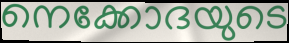
നെക്കോദയുടെ